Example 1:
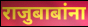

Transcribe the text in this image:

राजुबाबांना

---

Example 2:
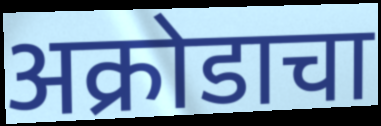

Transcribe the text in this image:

अक्रोडाचा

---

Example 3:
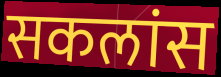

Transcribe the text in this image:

सकलांस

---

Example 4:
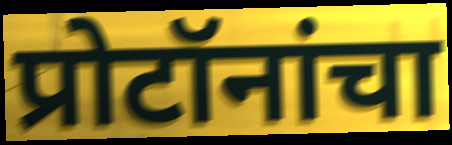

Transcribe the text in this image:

प्रोटॉनांचा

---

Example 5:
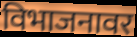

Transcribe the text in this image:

विभाजनावर